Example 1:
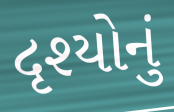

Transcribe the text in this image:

દૃશ્યોનું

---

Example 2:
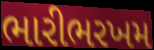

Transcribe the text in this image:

ભારીભરખમ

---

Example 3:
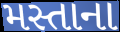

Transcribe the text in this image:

મસ્તાના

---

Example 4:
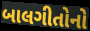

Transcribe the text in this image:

બાલગીતોનો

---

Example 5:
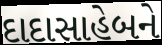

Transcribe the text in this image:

દાદાસાહેબને